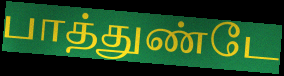
பாத்துண்டே